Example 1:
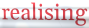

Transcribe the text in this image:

realising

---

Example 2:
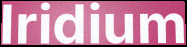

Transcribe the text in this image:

Iridium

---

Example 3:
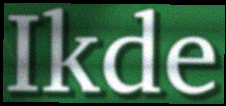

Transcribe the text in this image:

Ikde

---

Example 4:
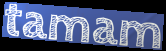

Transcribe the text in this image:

tamam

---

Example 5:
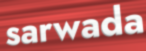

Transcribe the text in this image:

sarwada